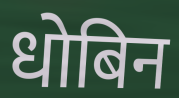
धोबिन